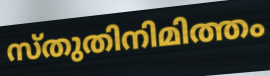
സ്തുതിനിമിത്തം